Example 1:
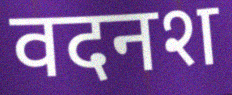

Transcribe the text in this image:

वदनश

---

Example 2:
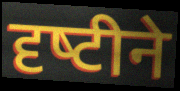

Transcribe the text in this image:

दृष्‍टीने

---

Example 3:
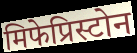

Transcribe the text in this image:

मिफेप्रिस्टोन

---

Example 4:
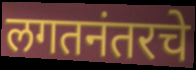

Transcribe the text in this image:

लगतनंतरचे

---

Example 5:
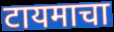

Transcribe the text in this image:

टायमाचा